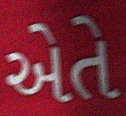
એતે